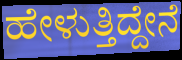
ಹೇಳುತ್ತಿದ್ದೇನೆ